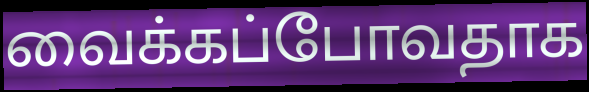
வைக்கப்போவதாக